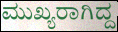
ಮುಖ್ಯರಾಗಿದ್ದ